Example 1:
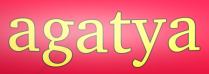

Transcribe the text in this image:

agatya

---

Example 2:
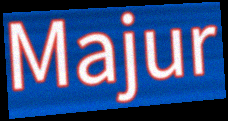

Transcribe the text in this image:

Majur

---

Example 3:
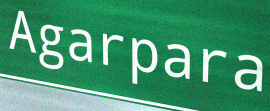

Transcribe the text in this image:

Agarpara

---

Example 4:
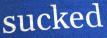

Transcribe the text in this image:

sucked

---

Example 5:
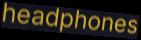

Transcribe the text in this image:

headphones